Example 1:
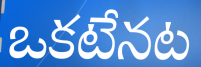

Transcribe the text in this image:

ఒకటేనట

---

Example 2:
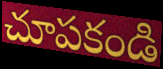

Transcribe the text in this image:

చూపకండి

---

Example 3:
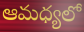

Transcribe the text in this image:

ఆమధ్యలో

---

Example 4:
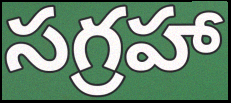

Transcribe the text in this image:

సగ్రహా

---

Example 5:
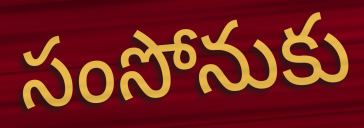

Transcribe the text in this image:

సంసోనుకు